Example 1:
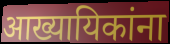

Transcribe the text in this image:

आख्यायिकांना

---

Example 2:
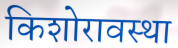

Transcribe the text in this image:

किशोरावस्था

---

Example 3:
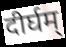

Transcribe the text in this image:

दीर्घम्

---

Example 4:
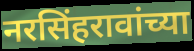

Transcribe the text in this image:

नरसिंहरावांच्या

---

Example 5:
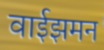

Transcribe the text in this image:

वाईझमन